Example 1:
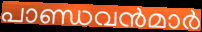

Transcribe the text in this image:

പാണ്ഡവൻമാർ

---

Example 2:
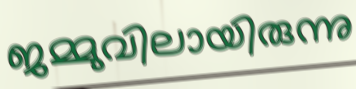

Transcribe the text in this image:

ജമ്മുവിലായിരുന്നു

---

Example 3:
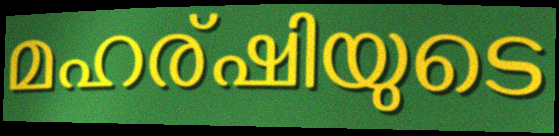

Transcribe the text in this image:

മഹര്ഷിയുടെ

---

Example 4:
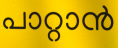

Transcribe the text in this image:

പാറ്റാൻ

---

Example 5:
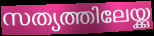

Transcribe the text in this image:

സത്യത്തിലേയ്ക്കു